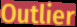
Outlier